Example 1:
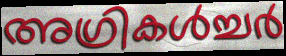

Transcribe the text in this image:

അഗ്രികൾച്ചർ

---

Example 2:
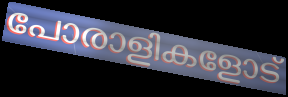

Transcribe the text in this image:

പോരാളികളോട്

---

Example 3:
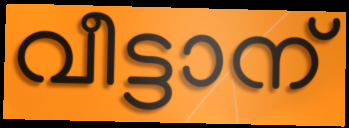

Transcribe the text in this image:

വീട്ടാന്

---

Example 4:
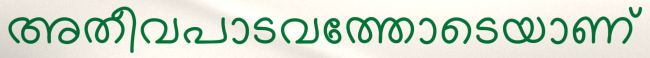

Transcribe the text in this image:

അതീവപാടവത്തോടെയാണ്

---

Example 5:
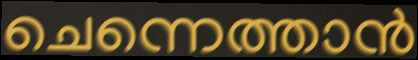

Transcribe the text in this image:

ചെന്നെത്താൻ